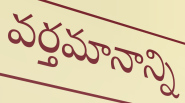
వర్తమానాన్ని